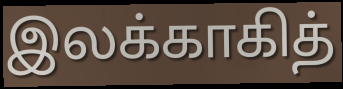
இலக்காகித்